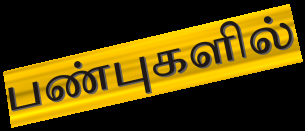
பண்புகளில்